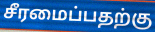
சீரமைப்பதற்கு